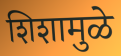
शिशामुळे